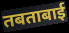
तबताबाई